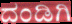
ದಂಡಿಗಿ